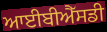
ਆਈਬੀਐੱਸਡੀ